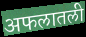
अफलातली